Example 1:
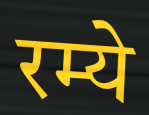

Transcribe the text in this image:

रम्ये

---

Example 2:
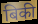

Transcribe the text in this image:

बिकी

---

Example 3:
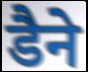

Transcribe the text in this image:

डैने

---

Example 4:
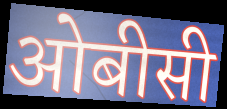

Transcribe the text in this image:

ओबीसी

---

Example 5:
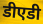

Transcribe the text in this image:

डीएडी